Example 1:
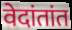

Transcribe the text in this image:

वेदांतांत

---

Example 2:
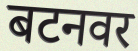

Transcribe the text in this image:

बटनवर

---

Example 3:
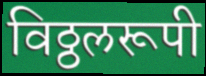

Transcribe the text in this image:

विठ्ठलरूपी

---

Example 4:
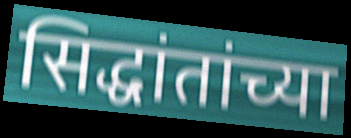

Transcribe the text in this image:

सिद्धांतांच्या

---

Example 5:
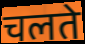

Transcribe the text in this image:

चलते